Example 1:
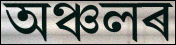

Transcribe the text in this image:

অঞ্চলৰ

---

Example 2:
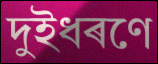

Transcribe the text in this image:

দুইধৰণে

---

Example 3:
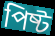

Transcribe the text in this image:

পিষ্ট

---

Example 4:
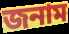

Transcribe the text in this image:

জনাম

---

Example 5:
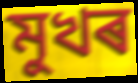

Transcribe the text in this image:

মুখৰ